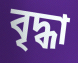
বৃদ্ধা